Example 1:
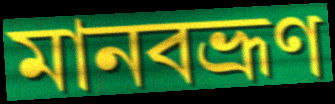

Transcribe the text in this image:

মানবভ্রূণ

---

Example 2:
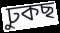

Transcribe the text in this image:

ঢুকছ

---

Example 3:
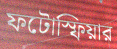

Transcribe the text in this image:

ফটোস্ফিয়ার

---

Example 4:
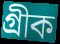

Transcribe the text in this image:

গ্রীক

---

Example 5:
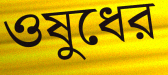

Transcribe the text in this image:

ওষুধের